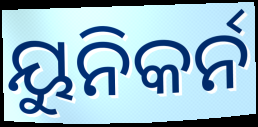
ୟୁନିକର୍ନ